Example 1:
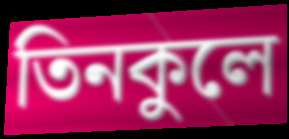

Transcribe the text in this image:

তিনকুলে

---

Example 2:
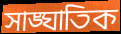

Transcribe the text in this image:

সাঙ্ঘাতিক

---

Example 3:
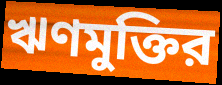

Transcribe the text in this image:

ঋণমুক্তির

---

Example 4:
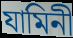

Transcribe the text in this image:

যামিনী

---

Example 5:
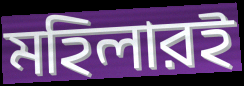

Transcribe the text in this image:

মহিলারই